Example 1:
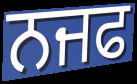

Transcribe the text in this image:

ਨਜਫ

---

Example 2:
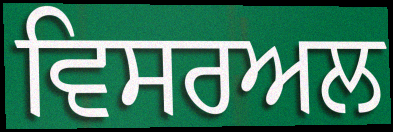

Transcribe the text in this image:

ਵਿਸਰਅਲ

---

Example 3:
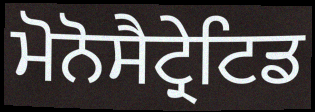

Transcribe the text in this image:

ਮੋਨੋਸੈਟ੍ਰੇਟਿਡ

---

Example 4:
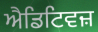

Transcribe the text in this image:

ਐਡਿਟਿਵਜ਼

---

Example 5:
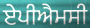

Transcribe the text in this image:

ਏਪੀਐਮਸੀ